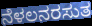
ನೆಳಲನರಸುತ